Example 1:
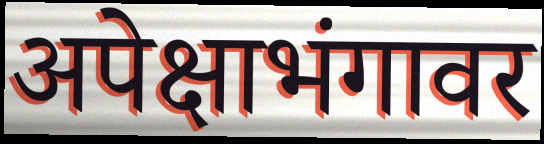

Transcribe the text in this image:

अपेक्षाभंगावर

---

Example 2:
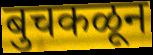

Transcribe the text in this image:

बुचकळून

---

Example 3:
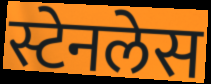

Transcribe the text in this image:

स्टेनलेस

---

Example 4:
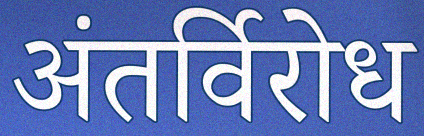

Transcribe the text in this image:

अंतर्विरोध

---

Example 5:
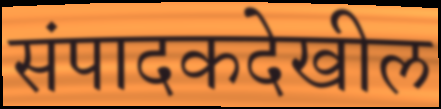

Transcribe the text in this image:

संपादकदेखील